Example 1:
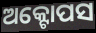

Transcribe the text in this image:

ଅକ୍ଟୋପସ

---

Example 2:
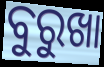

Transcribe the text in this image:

ବୁରୁଖା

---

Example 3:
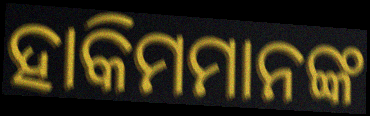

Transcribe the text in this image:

ହାକିମମାନଙ୍କ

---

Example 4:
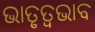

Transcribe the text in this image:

ଭାତୃତ୍ବଭାବ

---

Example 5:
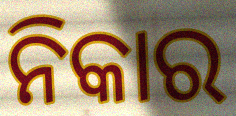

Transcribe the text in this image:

ନିକାର